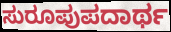
ಸುರೂಪುಪದಾರ್ಥ